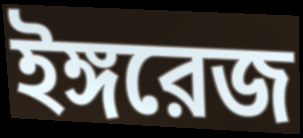
ইঙ্গরেজ